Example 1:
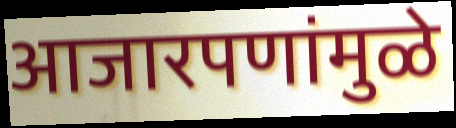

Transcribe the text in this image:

आजारपणांमुळे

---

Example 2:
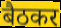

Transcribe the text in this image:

बैठकर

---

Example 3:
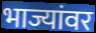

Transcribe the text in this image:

भाज्यांवर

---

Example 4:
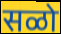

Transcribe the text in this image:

सळो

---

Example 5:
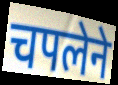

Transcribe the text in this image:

चपलेने